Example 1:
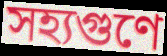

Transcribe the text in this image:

সহ্যগুণে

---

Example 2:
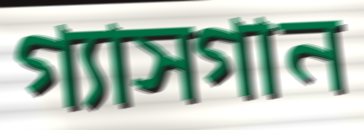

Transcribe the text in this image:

গ্যাসগান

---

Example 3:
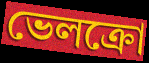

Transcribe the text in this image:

ভেলক্রো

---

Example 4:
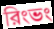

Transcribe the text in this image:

রিংভং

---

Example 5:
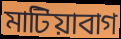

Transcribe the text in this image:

মাটিয়াবাগ